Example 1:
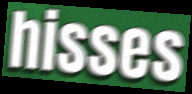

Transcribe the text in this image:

hisses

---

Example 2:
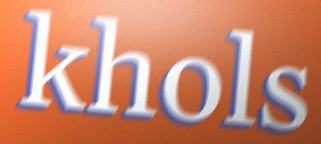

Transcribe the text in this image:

khols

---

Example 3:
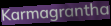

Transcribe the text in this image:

Karmagrantha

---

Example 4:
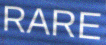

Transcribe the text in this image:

RARE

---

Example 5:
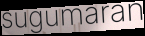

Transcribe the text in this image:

sugumaran